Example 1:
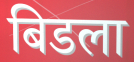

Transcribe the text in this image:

बिडला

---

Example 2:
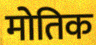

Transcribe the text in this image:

मोतिक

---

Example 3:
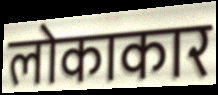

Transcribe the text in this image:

लोकाकार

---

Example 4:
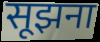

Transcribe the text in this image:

सूझना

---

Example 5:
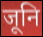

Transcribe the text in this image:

जूनि